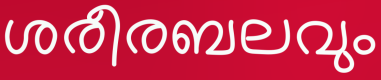
ശരീരബലവും